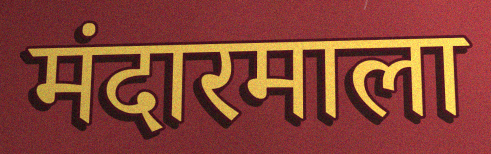
मंदारमाला